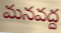
మనవద్ద